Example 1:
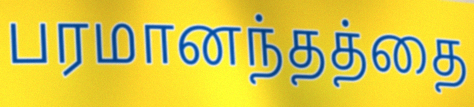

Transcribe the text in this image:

பரமானந்தத்தை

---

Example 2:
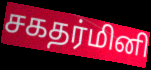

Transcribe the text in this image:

சகதர்மினி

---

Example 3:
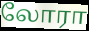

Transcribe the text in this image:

லோரா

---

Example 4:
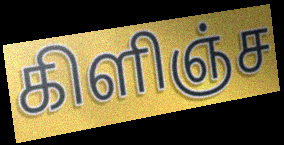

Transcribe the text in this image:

கிளிஞ்ச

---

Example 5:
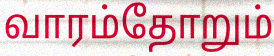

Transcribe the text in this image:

வாரம்தோறும்